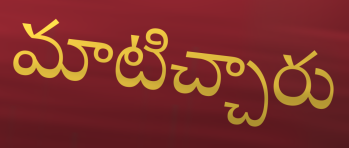
మాటిచ్చారు